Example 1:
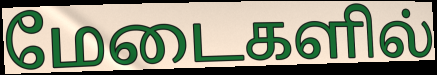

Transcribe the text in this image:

மேடைகளில்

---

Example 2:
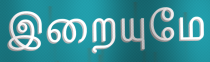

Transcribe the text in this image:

இறையுமே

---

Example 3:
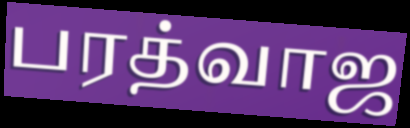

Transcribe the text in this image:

பரத்வாஜ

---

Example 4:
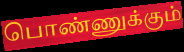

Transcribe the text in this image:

பொண்ணுக்கும்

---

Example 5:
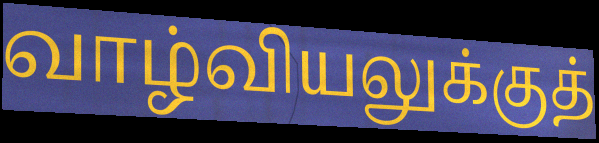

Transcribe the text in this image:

வாழ்வியலுக்குத்